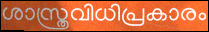
ശാസ്ത്രവിധിപ്രകാരം